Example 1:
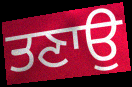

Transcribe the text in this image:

ਤਣਾਉ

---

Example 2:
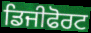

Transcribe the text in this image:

ਡਿਜੀਫੋਰਟ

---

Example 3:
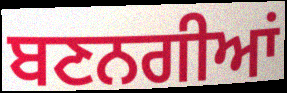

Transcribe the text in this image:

ਬਣਨਗੀਆਂ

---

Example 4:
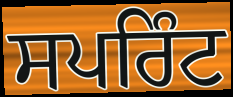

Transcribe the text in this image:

ਸਪਰਿੰਟ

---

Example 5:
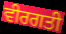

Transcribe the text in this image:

ਵੀਰਗਤੀ